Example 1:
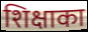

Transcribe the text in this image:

शिक्षाका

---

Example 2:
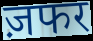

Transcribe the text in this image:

ज़फर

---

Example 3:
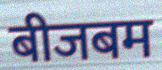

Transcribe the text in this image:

बीजबम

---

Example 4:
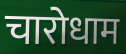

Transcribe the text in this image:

चारोधाम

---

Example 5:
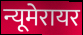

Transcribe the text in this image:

न्यूमेरायर